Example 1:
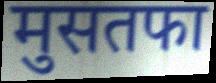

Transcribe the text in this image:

मुसतफा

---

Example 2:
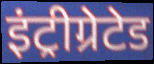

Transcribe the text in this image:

इंट्रीग्रेटेड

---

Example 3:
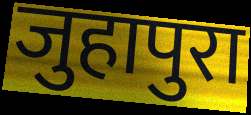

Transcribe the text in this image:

जुहापुरा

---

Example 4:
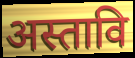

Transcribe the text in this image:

अस्तावि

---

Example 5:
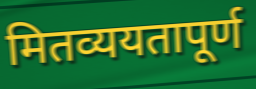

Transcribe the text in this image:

मितव्ययतापूर्ण